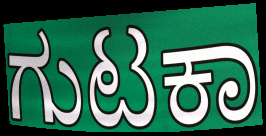
ಗುಟಕಾ